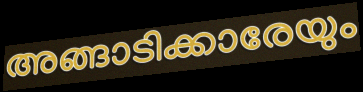
അങ്ങാടിക്കാരേയും